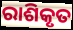
ରାଶିକୃତ